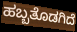
ಹಬ್ಬತೊಡಗಿದೆ